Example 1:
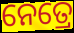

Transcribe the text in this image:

ନେତ୍ରେ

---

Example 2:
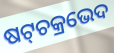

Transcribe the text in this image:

ଷଟ୍‌ଚକ୍ରଭେଦ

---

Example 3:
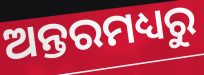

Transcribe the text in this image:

ଅନ୍ତରମଧ୍ୟରୁ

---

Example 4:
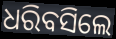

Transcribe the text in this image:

ଧରିବସିଲେ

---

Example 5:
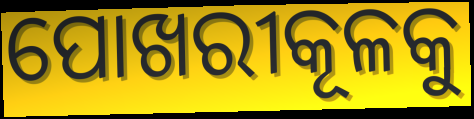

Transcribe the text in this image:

ପୋଖରୀକୂଳକୁ